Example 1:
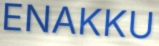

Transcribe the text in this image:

ENAKKU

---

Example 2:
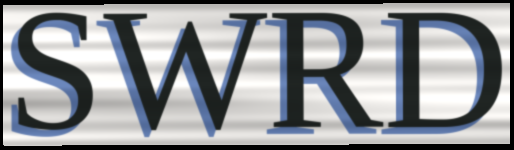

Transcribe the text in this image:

SWRD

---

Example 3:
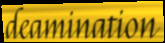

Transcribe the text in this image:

deamination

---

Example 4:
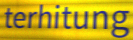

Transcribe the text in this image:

terhitung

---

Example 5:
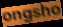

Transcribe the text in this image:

ongsho